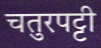
चतुरपट्टी